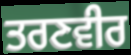
ਤਰਣਵੀਰ